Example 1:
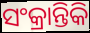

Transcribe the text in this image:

ସଂକ୍ରାନ୍ତିକି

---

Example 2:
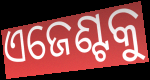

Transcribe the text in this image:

ଏଜେଣ୍ଟକୁ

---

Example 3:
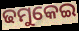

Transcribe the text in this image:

ଢମୁକେଇ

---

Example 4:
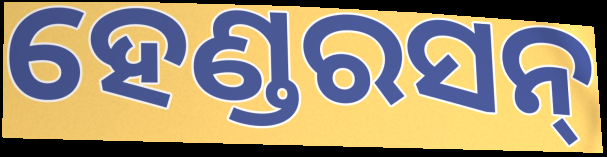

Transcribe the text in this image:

ହେଣ୍ଡରସନ୍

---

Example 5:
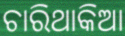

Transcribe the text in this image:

ଚାରିଥାକିଆ